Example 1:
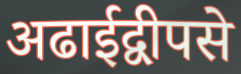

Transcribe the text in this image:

अढाईद्वीपसे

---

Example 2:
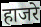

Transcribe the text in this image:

हाजरे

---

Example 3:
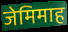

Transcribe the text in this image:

जेमिमाह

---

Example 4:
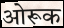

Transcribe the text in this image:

ओरूक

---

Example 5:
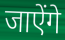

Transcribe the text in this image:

जाऐंगे